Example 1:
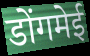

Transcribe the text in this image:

डोंगमेई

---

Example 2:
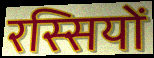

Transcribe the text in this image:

रस्सियों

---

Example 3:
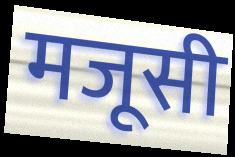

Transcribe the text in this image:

मजूसी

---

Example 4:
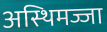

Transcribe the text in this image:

अस्थिमज्जा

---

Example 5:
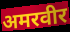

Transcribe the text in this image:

अमरवीर